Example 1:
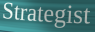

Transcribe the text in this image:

Strategist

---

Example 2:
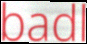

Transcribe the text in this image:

badl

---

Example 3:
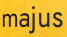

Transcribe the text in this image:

majus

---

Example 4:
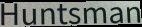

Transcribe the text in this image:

Huntsman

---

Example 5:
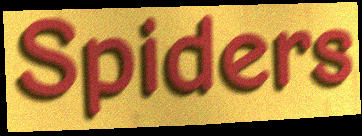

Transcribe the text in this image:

Spiders